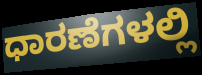
ಧಾರಣೆಗಳಲ್ಲಿ